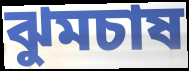
ঝুমচাষ